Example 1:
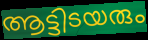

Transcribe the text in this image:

ആട്ടിടയരും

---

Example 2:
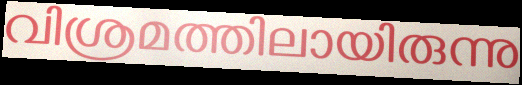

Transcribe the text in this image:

വിശ്രമത്തിലായിരുന്നു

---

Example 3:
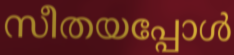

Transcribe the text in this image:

സീതയപ്പോൾ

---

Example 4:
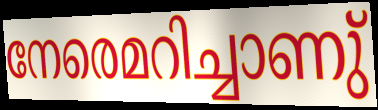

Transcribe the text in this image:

നേരെമറിച്ചാണു്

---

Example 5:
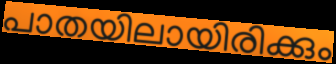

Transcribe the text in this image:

പാതയിലായിരിക്കും